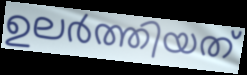
ഉലർത്തിയത്